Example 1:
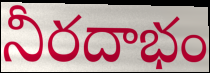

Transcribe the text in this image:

నీరదాభం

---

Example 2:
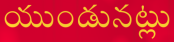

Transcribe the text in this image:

యుండునట్లు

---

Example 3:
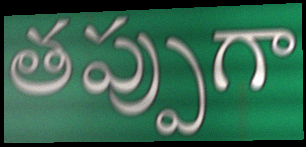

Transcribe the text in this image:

తప్పుగా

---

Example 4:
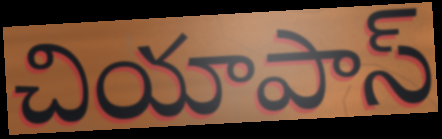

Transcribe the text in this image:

చియాపాస్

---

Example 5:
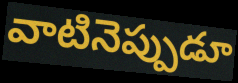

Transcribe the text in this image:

వాటినెప్పుడూ